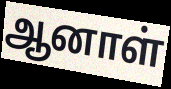
ஆனாள்